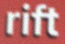
rift